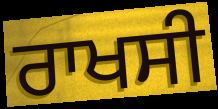
ਰਾਖਸੀ